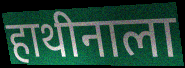
हाथीनाला